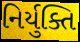
નિર્યુક્તિ